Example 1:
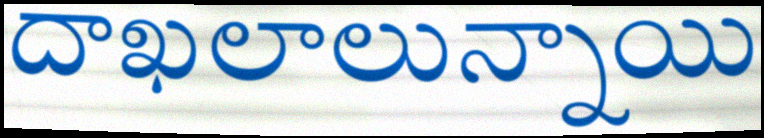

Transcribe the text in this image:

దాఖలాలున్నాయి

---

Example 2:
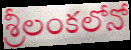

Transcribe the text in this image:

శ్రీలంకలోనో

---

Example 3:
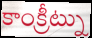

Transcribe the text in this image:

కాంక్రీట్ను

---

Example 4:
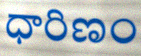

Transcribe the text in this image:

ధారిణం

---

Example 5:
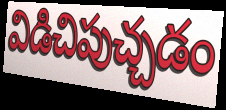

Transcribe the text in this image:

విడిచిపుచ్చడం